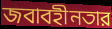
জবাবহীনতার